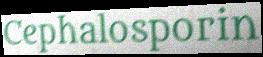
Cephalosporin